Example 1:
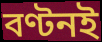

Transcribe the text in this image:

বণ্টনই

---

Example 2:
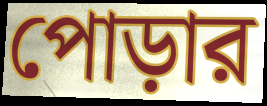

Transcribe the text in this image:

পোড়ার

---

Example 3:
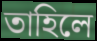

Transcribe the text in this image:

তাহিলে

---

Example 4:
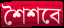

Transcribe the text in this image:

শৈশবে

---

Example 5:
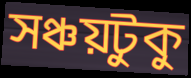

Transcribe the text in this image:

সঞ্চয়টুকু